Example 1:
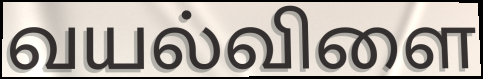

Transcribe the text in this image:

வயல்விளை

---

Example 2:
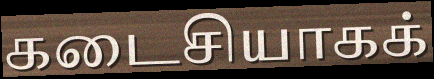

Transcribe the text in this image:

கடைசியாகக்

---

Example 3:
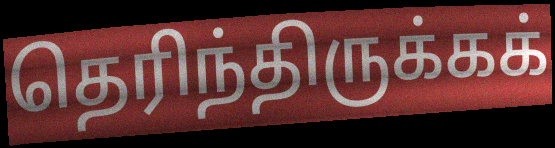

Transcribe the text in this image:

தெரிந்திருக்கக்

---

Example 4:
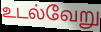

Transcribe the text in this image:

உடல்வேறு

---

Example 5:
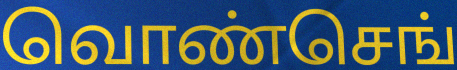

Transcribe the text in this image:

வொண்செங்